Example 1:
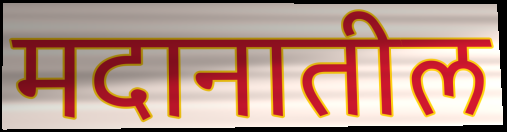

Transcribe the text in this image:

मदानातील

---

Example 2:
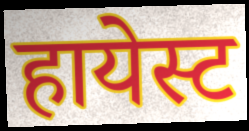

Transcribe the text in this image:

हायेस्ट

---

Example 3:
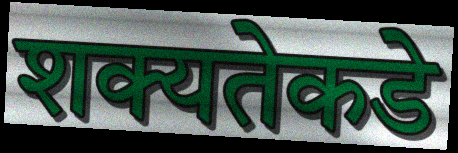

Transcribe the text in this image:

शक्यतेकडे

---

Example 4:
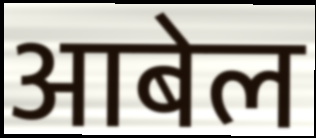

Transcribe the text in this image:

आबेल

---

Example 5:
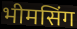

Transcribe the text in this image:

भीमसिंग